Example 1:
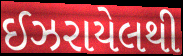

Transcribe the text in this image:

ઈઝરાયેલથી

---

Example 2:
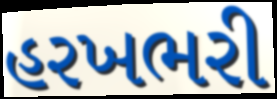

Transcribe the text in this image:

હરખભરી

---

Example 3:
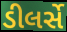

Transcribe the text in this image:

ડીલર્સે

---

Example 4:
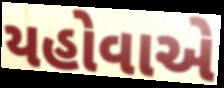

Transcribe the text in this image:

યહોવાએ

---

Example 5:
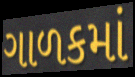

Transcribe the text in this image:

ગાળકમાં